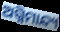
ଅଗ୍ନିମାନ୍ଦ୍ୟ